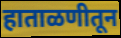
हाताळणीतून